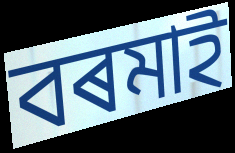
বৰমাই